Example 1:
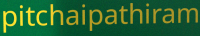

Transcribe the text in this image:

pitchaipathiram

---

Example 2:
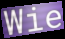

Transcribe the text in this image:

Wie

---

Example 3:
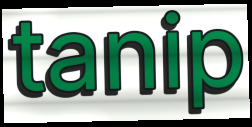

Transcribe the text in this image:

tanip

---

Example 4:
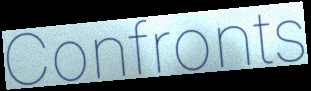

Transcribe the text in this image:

Confronts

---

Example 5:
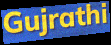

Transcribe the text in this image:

Gujrathi